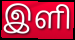
இளி